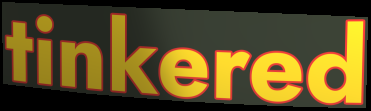
tinkered